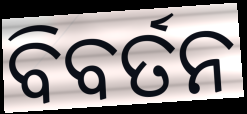
ବିବର୍ତନ